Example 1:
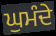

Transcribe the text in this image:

ਘੁਮੰਦੇ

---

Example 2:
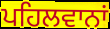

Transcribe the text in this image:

ਪਹਿਲਵਾਨਾਂ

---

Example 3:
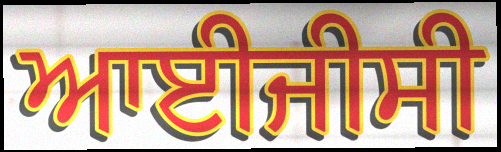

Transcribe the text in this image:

ਆਈਜੀਸੀ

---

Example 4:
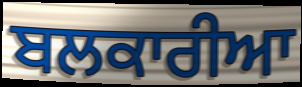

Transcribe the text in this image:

ਬਲਕਾਰੀਆ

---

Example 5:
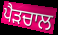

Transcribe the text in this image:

ਪੈੜਚਾਲ